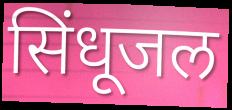
सिंधूजल